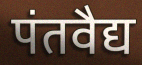
पंतवैद्य